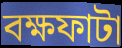
বক্ষফাটা